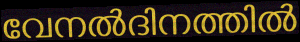
വേനൽദിനത്തിൽ